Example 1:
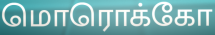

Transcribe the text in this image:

மொரொக்கோ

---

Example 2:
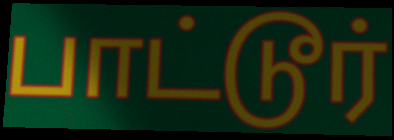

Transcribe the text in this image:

பாட்டூர்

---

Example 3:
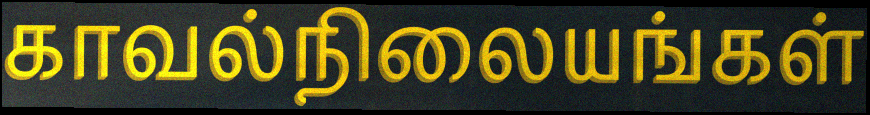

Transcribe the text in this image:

காவல்நிலையங்கள்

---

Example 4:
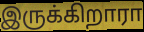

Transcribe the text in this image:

இருக்கிறாரா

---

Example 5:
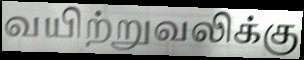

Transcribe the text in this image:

வயிற்றுவலிக்கு